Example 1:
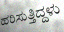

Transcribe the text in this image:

ಹರಿಸುತ್ತಿದ್ದಳು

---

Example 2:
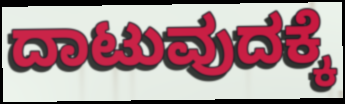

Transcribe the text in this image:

ದಾಟುವುದಕ್ಕೆ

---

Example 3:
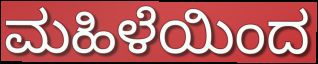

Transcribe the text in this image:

ಮಹಿಳೆಯಿಂದ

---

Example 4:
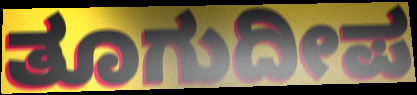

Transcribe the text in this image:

ತೂಗುದೀಪ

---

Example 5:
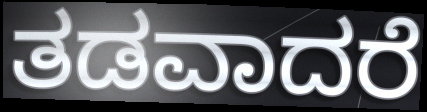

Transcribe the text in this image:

ತಡವಾದರೆ